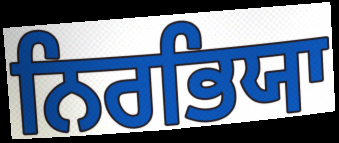
ਨਿਰਭਿਯਾ